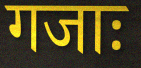
गजाः